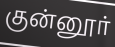
குன்னூர்